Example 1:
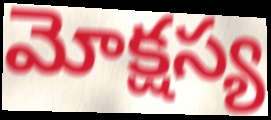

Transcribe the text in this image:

మోక్షస్య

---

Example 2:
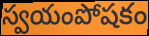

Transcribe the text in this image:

స్వయంపోషకం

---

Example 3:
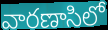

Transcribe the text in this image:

వారణాసిలో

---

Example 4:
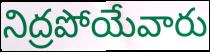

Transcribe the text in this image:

నిద్రపోయేవారు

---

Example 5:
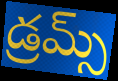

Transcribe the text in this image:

డ్రమ్స్